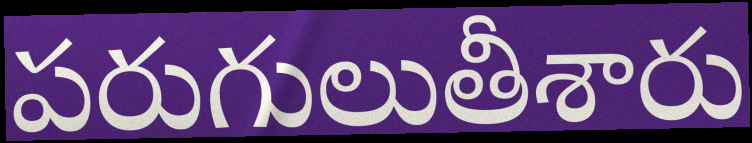
పరుగులుతీశారు